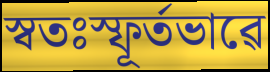
স্বতঃস্ফূৰ্তভাৱে